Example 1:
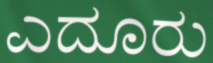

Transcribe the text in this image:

ಎದೂರು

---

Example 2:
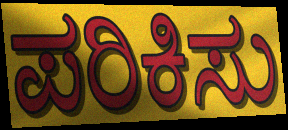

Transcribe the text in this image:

ಪರಿಕಿಸು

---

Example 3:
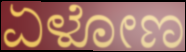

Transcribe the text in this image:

ಏಳೋಣ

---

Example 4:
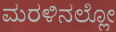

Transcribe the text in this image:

ಮರಳಿನಲ್ಲೋ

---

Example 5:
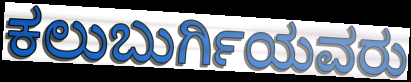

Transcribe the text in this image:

ಕಲುಬುರ್ಗಿಯವರು